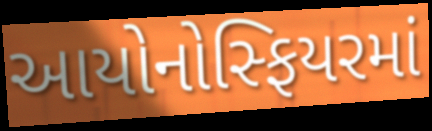
આયોનોસ્ફિયરમાં